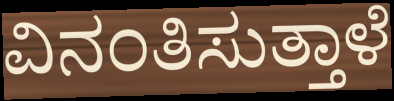
ವಿನಂತಿಸುತ್ತಾಳೆ